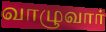
வாழுவார்